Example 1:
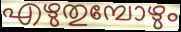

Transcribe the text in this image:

എഴുതുമ്പോഴും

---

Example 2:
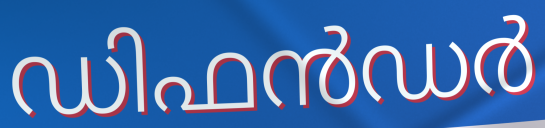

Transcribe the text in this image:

ഡിഫൻഡർ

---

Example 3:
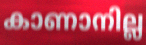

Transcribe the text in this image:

കാണാനില്ല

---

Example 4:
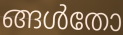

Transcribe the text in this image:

ങ്ങൾതോ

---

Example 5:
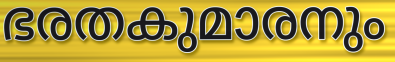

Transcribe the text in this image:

ഭരതകുമാരനും